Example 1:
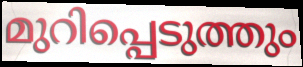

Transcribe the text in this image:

മുറിപ്പെടുത്തും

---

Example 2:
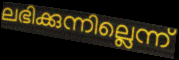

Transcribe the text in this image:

ലഭിക്കുന്നില്ലെന്ന്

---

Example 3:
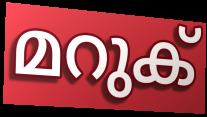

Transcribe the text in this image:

മറുക്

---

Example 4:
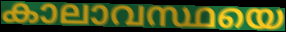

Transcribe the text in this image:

കാലാവസ്ഥയെ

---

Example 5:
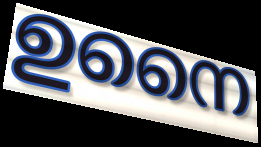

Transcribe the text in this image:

ഉനൈ